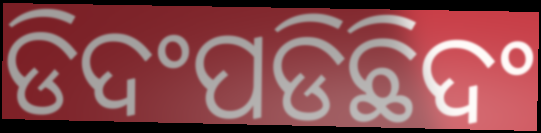
ଡିଦଂପଡିଛିଦଂ